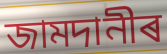
জামদানীৰ